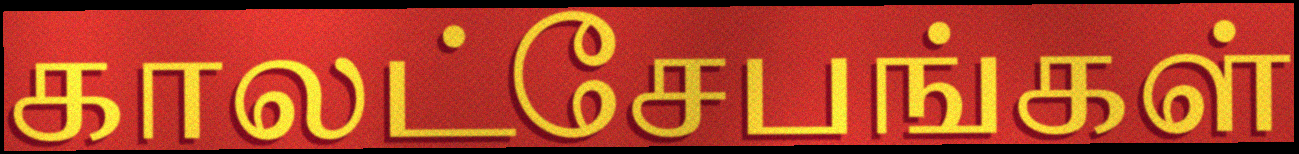
காலட்சேபங்கள்